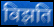
विझति